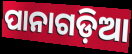
ପାନାଗଡ଼ିଆ